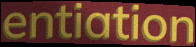
entiation